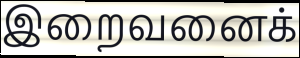
இறைவனைக்